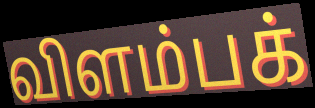
விளம்பக்